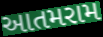
આતમરામ